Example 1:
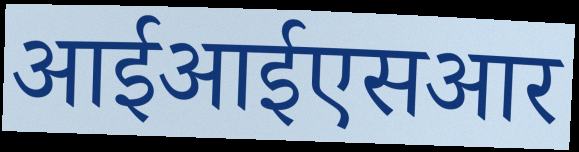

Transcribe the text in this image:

आईआईएसआर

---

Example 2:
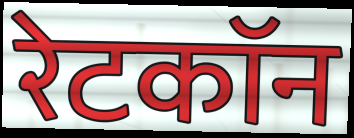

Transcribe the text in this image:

रेटकॉन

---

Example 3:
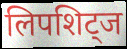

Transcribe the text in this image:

लिपशिट्ज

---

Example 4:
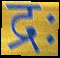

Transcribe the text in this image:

द्रः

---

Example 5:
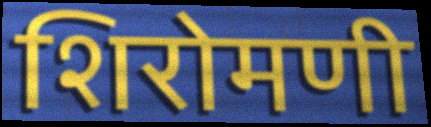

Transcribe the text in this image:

शिरोमणी